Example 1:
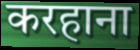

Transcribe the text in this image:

करहाना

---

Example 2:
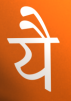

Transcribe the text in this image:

यै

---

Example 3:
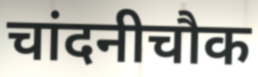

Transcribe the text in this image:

चांदनीचौक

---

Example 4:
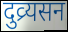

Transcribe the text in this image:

दुव्र्यसन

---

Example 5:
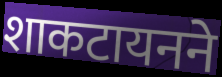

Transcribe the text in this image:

शाकटायनने